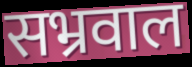
सभ्रवाल